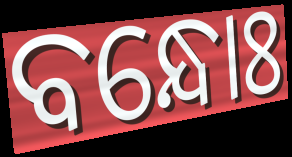
ବନ୍ଧୋଃ